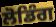
ਲੋਡਿੰਗ